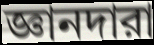
জ্ঞানদারা